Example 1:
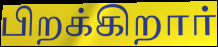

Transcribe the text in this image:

பிறக்கிறார்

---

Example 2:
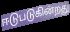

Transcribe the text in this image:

ஈடுபடுகின்றது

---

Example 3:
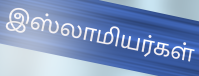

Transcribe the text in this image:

இஸ்லாமியர்கள்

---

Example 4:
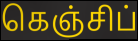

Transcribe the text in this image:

கெஞ்சிப்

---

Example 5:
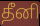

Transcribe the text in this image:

தீனி